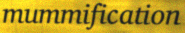
mummification